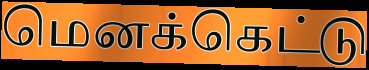
மெனக்கெட்டு